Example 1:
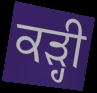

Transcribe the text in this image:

ਕੜ੍ਹੀ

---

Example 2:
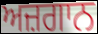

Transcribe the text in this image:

ਅਜ਼ਗਾਨ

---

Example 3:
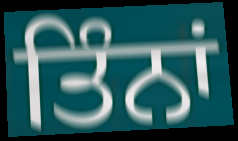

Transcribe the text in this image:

ਤਿੰਨਾਂ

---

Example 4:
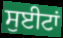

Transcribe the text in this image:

ਸੁਈਟਾਂ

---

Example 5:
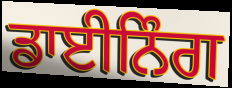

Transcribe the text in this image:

ਡਾਈਨਿੰਗ